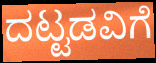
ದಟ್ಟಡವಿಗೆ